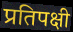
प्रतिपक्षी